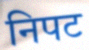
निपट